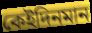
কেইদিনমান